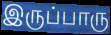
இருப்பாரு